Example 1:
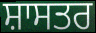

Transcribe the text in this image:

ਸ਼ਾਸਤਰ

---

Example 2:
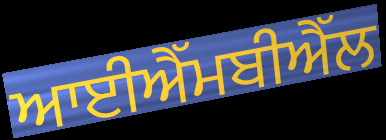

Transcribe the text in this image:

ਆਈਐੱਮਬੀਐੱਲ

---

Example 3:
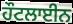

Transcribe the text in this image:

ਹੌਟਲਾਈਨ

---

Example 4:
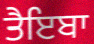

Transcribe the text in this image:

ਤੈਇਬਾ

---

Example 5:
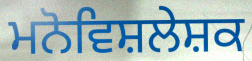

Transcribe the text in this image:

ਮਨੋਵਿਸ਼ਲੇਸ਼ਕ